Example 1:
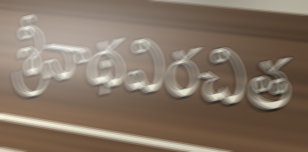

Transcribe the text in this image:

శ్రీనాథవిరచిత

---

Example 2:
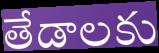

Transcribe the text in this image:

తేడాలకు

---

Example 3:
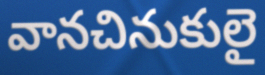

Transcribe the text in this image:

వానచినుకులై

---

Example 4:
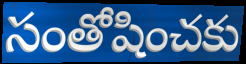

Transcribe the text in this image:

సంతోషించకు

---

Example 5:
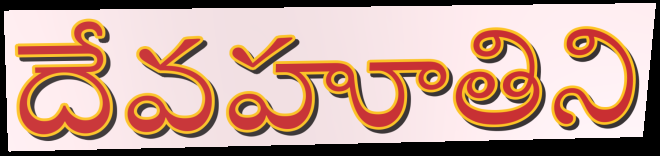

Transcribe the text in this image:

దేవహూతిని